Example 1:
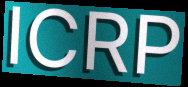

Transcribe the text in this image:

ICRP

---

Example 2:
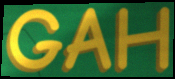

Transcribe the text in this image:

GAH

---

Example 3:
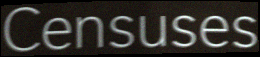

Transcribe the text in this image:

Censuses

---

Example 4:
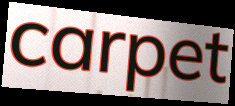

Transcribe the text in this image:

carpet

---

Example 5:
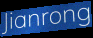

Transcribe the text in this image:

Jianrong